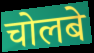
चोलबे